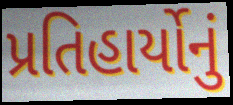
પ્રતિહાર્યોનું